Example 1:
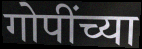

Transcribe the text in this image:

गोपींच्या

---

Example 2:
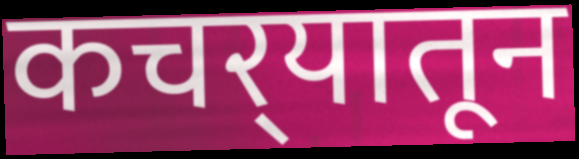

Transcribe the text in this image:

कचर्‍यातून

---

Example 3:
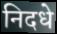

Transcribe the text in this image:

निदधे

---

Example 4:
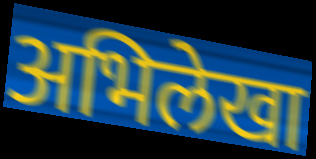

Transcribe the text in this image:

अभिलेखा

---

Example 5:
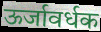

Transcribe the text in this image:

ऊर्जावर्धक